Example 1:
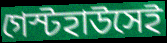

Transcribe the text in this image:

গেস্টহাউসেই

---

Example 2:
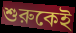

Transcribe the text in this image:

শুরুকেই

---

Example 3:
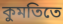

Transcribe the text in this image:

কুমতিতে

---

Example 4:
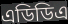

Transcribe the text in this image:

এডিডিএ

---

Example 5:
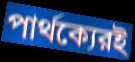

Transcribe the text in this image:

পার্থক্যেরই